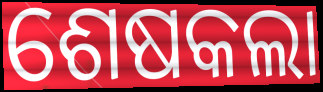
ଶେଷକଲା